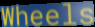
Wheels